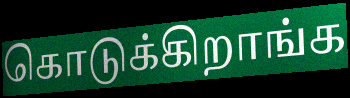
கொடுக்கிறாங்க